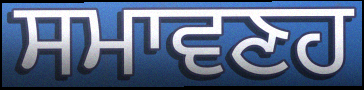
ਸਮਾਵਣਹ